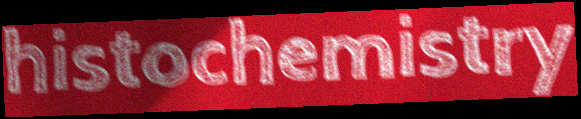
histochemistry